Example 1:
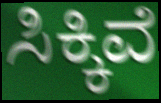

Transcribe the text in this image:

ಸಿಕ್ಕಿವೆ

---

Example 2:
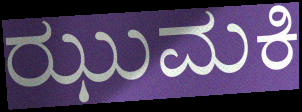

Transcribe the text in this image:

ಝುಮಕಿ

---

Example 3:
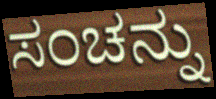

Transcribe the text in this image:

ಸಂಚನ್ನು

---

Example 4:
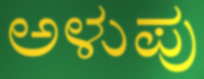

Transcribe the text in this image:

ಅಳುಪು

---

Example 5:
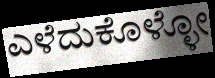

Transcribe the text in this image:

ಎಳೆದುಕೊಳ್ಳೋ